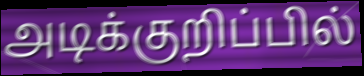
அடிக்குறிப்பில்